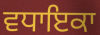
ਵਧਾਇਕਾ